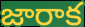
జారాక